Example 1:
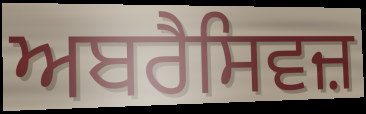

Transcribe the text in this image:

ਅਬਰੈਸਿਵਜ਼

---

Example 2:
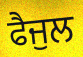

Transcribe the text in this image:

ਫੈਜੁਲ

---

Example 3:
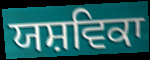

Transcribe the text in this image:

ਯਸ਼ਵਿਕਾ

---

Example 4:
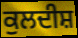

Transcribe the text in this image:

ਕੁਲਦੀਸ਼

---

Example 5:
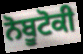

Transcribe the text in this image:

ਨੋਬੂਟੋਕੀ